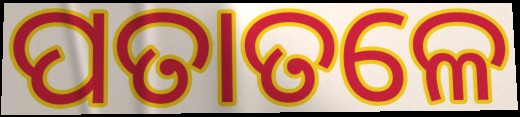
ପତାତଳେ